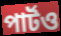
পার্টও